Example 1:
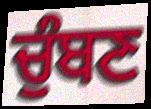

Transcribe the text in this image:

ਚੁੰਬਣ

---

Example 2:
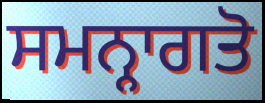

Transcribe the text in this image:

ਸਮਨ੍ਨਾਗਤੋ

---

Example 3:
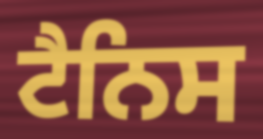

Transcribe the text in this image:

ਟੈਨਿਸ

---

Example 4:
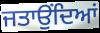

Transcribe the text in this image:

ਜਤਾਉੰਦਿਆਂ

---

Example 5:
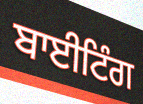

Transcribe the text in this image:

ਬਾਈਟਿੰਗ